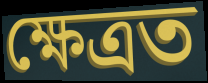
ক্ষেত্ৰত